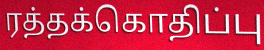
ரத்தக்கொதிப்பு